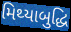
મિથ્યાબુદ્ધિ